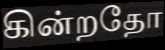
கின்றதோ